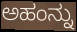
ಅಹಂನ್ನು